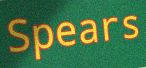
Spears